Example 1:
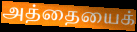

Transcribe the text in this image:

அத்தையைக்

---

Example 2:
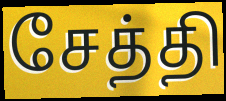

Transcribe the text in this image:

சேத்தி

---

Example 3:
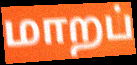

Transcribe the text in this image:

மாறப்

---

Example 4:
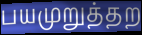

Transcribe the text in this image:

பயமுறுத்தற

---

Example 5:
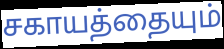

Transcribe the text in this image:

சகாயத்தையும்